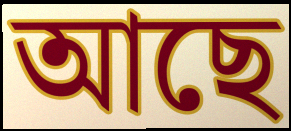
আছে